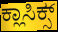
ಕ್ಲಾಸಿಕ್ಸ್